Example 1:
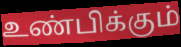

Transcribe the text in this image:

உண்பிக்கும்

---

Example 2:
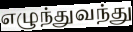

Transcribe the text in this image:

எழுந்துவந்து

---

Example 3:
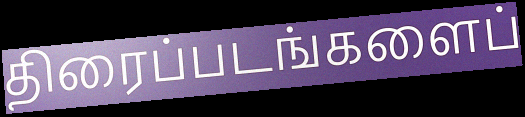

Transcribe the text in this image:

திரைப்படங்களைப்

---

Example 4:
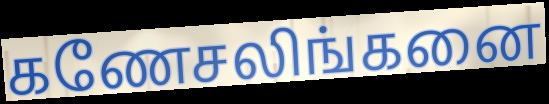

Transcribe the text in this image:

கணேசலிங்கனை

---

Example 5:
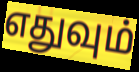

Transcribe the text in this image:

எதுவும்